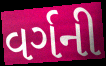
વર્ગની